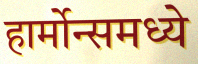
हार्मोन्समध्ये